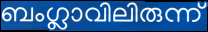
ബംഗ്ലാവിലിരുന്ന്